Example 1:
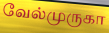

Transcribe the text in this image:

வேல்முருகா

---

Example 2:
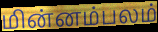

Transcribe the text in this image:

மின்னம்பலம்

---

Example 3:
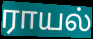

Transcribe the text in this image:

ராயல்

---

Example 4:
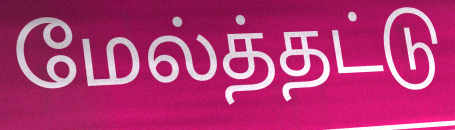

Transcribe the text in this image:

மேல்த்தட்டு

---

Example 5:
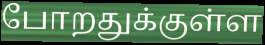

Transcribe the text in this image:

போறதுக்குள்ள